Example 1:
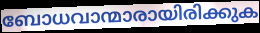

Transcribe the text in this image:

ബോധവാന്മാരായിരിക്കുക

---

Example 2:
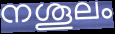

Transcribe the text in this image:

നശൂലം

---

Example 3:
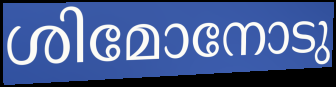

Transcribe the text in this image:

ശിമോനോടു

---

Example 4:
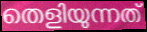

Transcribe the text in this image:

തെളിയുന്നത്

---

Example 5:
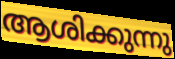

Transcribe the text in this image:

ആശിക്കുന്നു